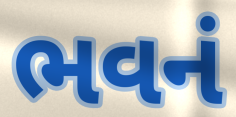
ભવનં